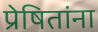
प्रेषितांना